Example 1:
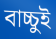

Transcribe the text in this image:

বাচ্চুই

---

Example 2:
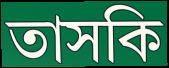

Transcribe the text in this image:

তাসকি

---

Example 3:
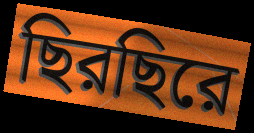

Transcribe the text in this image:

ছিরছিরে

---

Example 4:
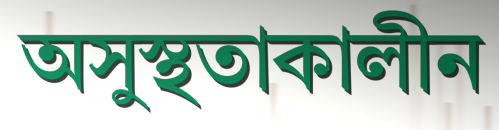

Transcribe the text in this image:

অসুস্থতাকালীন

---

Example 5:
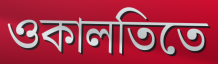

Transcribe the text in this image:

ওকালতিতে